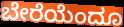
ಬೇರೆಯೆಂದೂ